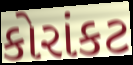
કોરાંકટ